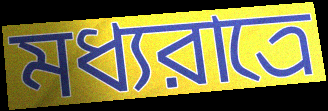
মধ্যরাত্রে